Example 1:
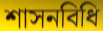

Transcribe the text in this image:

শাসনবিধি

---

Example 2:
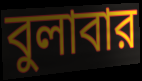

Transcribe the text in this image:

বুলাবার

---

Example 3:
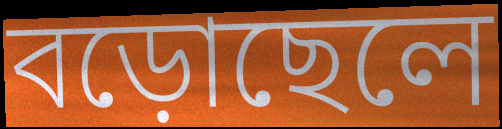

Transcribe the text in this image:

বড়োছেলে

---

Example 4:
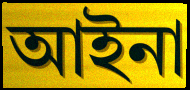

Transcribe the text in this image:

আইনা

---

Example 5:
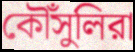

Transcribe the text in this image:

কৌঁসুলিরা